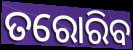
ତରୋରିବ